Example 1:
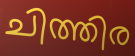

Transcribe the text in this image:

ചിത്തിര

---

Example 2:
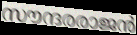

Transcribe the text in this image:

സൗന്ദരരാജൻ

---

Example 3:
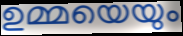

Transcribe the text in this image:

ഉമ്മയെയും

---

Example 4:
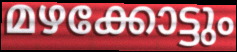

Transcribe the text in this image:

മഴക്കോട്ടും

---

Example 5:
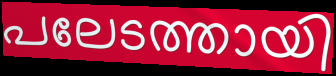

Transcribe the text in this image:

പലേടത്തായി